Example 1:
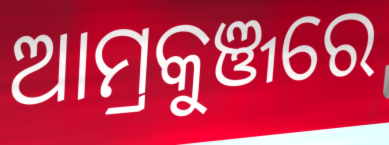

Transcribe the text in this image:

ଆମ୍ରକୁଞ୍ଜରେ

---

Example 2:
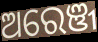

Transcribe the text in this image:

ଅରେଞ୍ଜ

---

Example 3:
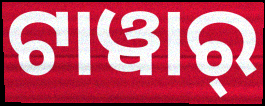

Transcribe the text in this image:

ଟାୱାର୍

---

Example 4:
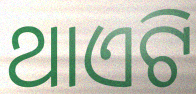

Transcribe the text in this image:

ଥାଏଟି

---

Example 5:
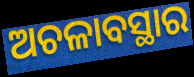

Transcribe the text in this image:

ଅଚଳାବସ୍ଥାର